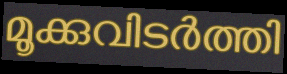
മൂക്കുവിടർത്തി